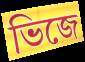
ভিজে